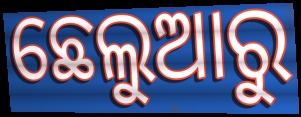
ଛେଲୁଆରୁ